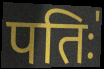
पतिः॑